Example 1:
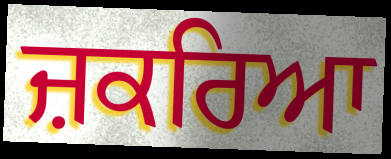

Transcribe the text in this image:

ਜ਼ਕਰਿਆ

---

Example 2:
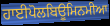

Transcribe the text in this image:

ਹਾਈਪੋਲਬਿਊਮਿਨਮੀਆ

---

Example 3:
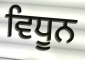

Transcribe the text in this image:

ਵਿਧੂਨ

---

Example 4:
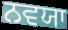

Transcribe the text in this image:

ਨਵਯਾ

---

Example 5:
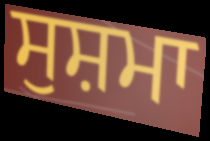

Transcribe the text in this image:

ਸੁਸ਼ਮਾ